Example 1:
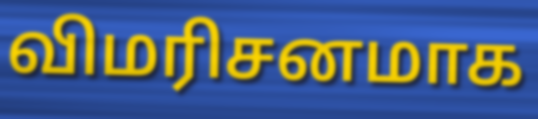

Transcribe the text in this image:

விமரிசனமாக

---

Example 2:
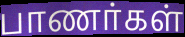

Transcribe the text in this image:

பாணர்கள்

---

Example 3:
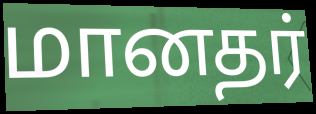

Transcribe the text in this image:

மானதர்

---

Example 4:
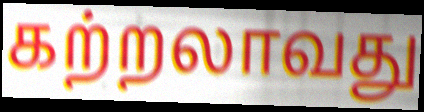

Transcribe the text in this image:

கற்றலாவது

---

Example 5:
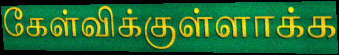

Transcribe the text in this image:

கேள்விக்குள்ளாக்க